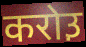
करोउ़